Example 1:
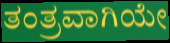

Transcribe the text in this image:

ತಂತ್ರವಾಗಿಯೇ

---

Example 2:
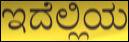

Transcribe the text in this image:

ಇದೆಲ್ಲಿಯ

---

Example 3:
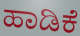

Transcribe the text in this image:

ಹಾಡಿಕೆ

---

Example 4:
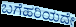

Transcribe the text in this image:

ಬಗೆಹರಿಯದೇ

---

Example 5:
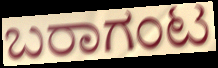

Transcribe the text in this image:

ಬರಾಗಂಟ